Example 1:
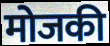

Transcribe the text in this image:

मोजकी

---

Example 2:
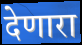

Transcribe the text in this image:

देणारा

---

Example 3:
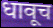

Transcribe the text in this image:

धावूच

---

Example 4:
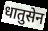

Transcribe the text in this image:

धातुसेन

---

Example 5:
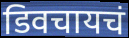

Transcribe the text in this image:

डिवचायचं